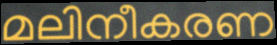
മലിനീകരണ